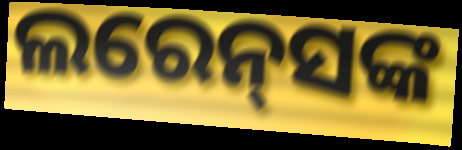
ଲରେନ୍‌ସଙ୍କ